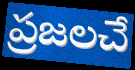
ప్రజలచే